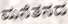
ಮನೆತನದ